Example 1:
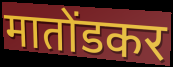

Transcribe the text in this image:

मातोंडकर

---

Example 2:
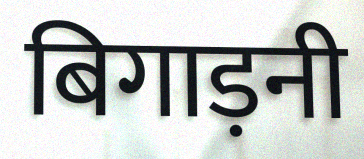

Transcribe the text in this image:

बिगाड़नी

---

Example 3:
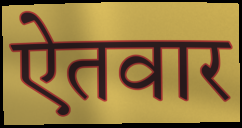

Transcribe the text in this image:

ऐतवार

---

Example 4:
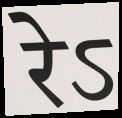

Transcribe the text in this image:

रेऽ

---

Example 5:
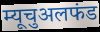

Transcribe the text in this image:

म्यूचुअलफंड